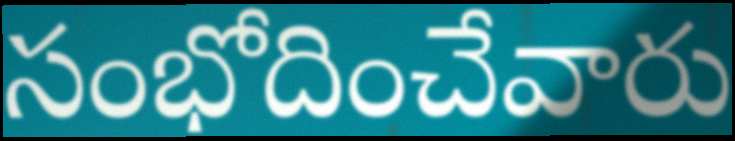
సంభోదించేవారు